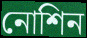
নোশিন